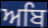
ਅਬਿ